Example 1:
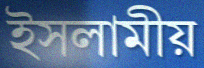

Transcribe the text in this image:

ইসলামীয়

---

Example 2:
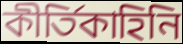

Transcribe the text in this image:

কীর্তিকাহিনি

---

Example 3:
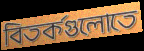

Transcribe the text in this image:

বিতর্কগুলোতে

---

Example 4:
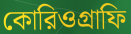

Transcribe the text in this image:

কোরিওগ্রাফি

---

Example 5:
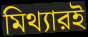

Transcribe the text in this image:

মিথ্যারই